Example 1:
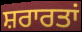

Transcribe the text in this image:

ਸ਼ਰਾਰਤਾਂ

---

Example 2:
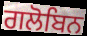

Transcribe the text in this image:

ਗਲੋਬਿਨ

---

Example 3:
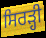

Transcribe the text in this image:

ਸਿਰੜ੍ਹੀ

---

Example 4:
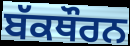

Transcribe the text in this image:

ਬੱਕਥੌਰਨ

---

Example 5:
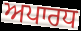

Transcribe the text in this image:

ਅਪਾਰਧ